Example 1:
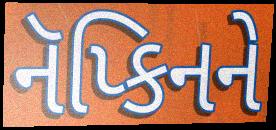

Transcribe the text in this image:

નૅપ્કિનને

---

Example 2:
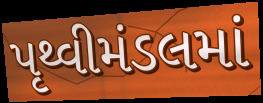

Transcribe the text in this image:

પૃથ્વીમંડલમાં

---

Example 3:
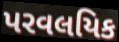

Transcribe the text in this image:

પરવલયિક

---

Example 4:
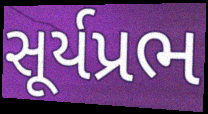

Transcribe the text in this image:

સૂર્યપ્રભ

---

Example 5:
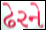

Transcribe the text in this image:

ઢેરને